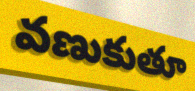
వణుకుతూ